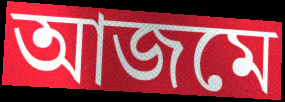
আজমে